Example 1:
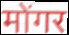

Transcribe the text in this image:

मोंगर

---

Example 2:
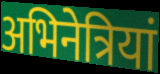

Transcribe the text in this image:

अभिनेत्रियां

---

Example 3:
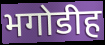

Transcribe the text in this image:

भगोडीह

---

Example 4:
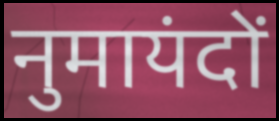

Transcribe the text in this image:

नुमायंदों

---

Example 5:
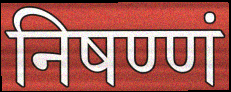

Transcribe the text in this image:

निषण्णं